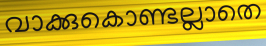
വാക്കുകൊണ്ടല്ലാതെ